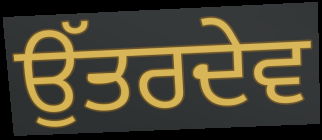
ਉੱਤਰਦੇਵ